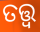
ତତ୍ତ୍ବ